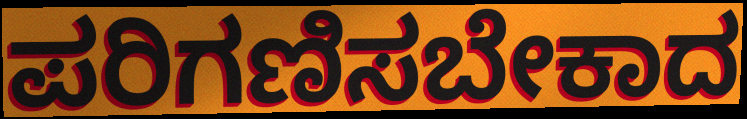
ಪರಿಗಣಿಸಬೇಕಾದ